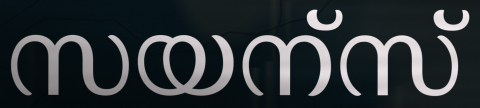
സയന്സ്